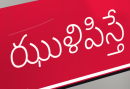
ఝుళిపిస్తే